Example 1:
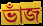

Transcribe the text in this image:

ভাঁজ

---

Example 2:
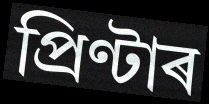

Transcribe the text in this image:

প্ৰিণ্টাৰ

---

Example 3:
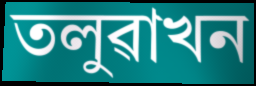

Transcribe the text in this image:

তলুৱাখন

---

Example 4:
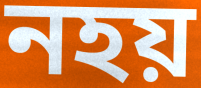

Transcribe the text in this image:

নহয়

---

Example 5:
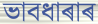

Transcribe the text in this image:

ভাবধাৰাৰ